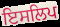
ਇਸਲਿਪ